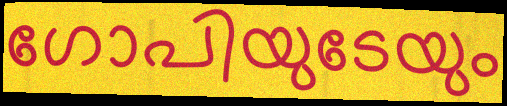
ഗോപിയുടേയും